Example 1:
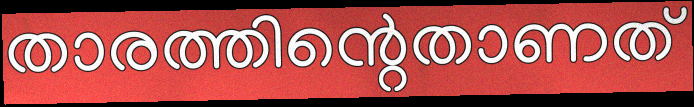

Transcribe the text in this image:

താരത്തിന്റെതാണത്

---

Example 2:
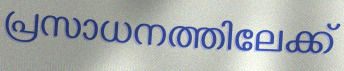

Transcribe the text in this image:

പ്രസാധനത്തിലേക്ക്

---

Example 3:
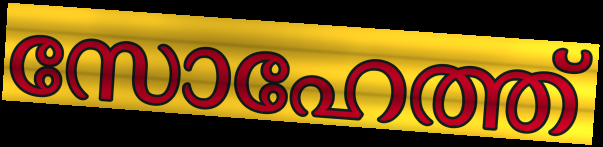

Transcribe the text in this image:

സോഹേത്ത്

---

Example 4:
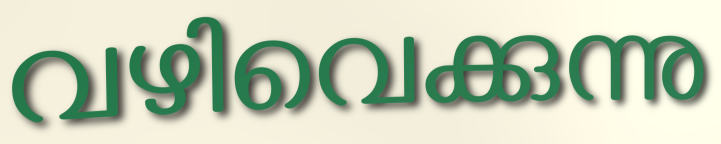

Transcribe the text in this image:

വഴിവെക്കുന്നു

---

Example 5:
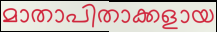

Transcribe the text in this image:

മാതാപിതാക്കളായ